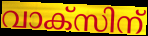
വാക്സിന്